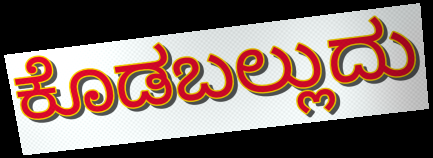
ಕೊಡಬಲ್ಲುದು